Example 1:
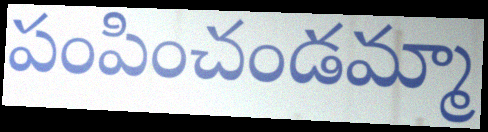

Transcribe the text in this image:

పంపించండమ్మా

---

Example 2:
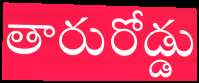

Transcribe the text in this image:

తారురోడ్డు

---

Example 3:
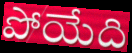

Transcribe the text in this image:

పోయేది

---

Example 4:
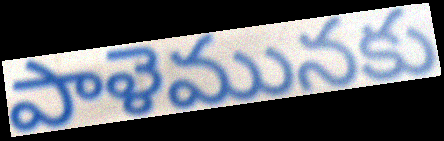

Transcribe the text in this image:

పాళెమునకు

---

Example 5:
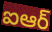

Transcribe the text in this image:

ఐఆర్